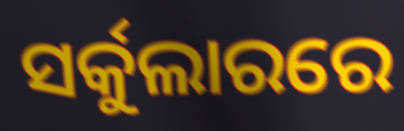
ସର୍କୁଲାରରେ